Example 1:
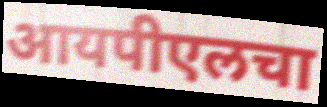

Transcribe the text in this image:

आयपीएलचा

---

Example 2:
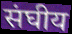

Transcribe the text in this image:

संघीय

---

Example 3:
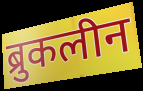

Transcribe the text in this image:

ब्रुकलीन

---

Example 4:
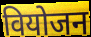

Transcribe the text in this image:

वियोजन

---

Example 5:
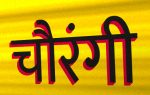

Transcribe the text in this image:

चौरंगी